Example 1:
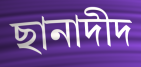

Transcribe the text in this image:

ছানাদীদ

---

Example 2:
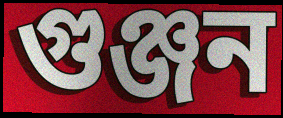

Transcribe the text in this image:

গুঞ্জন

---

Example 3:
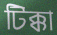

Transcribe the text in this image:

টিক্কা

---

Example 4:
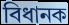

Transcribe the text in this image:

বিধানক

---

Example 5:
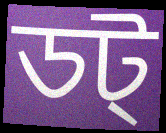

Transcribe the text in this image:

ডট্